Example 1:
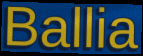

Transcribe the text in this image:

Ballia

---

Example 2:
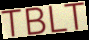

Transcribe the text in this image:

TBLT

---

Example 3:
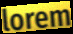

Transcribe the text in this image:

lorem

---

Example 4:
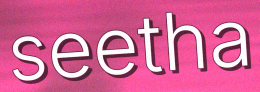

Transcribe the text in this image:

seetha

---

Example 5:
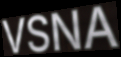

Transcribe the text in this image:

VSNA